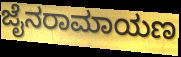
ಜೈನರಾಮಾಯಣ